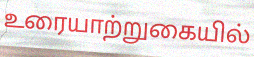
உரையாற்றுகையில்